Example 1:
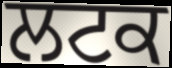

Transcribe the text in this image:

ਲਟਕ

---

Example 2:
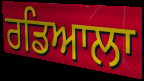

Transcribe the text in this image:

ਰਡਿਆਲਾ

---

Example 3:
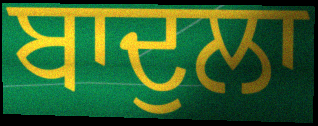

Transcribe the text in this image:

ਬਾਦੁਲਾ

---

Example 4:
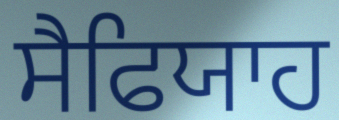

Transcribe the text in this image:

ਸੈਫਿਯਾਹ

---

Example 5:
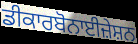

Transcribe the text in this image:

ਡੀਕਾਰਬੋਨਾਈਜ਼ੇਸ਼ਨ